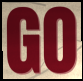
GO